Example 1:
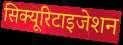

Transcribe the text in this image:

सिक्यूरिटाइजेशन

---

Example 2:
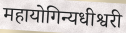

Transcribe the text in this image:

महायोगिन्यधीश्वरी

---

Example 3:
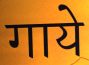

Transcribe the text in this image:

गाये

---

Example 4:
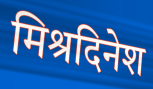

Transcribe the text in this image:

मिश्रदिनेश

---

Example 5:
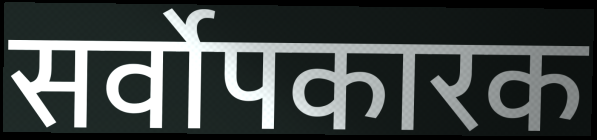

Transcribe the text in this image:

सर्वोपकारक